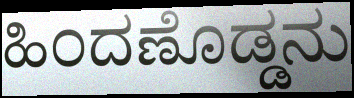
ಹಿಂದಣೊಡ್ಡನು